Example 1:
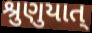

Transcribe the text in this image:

શ્રુણુયાત્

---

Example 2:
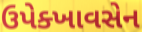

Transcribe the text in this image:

ઉપેક્ખાવસેન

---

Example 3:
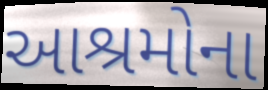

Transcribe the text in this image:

આશ્રમોના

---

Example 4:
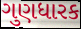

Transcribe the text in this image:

ગુણધારક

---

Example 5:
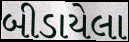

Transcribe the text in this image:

બીડાયેલા